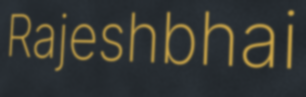
Rajeshbhai